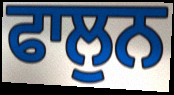
ਫਾਲੁਨ